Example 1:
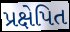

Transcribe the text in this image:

પ્રક્ષેપિત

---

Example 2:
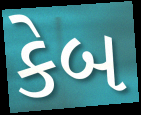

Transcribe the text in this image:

કેબ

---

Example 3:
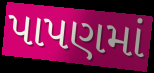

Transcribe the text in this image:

પાપણમાં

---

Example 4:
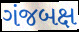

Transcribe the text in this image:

ગંજબક્ષ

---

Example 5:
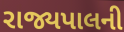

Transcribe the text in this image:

રાજ્યપાલની